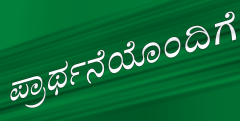
ಪ್ರಾರ್ಥನೆಯೊಂದಿಗೆ